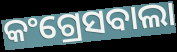
କଂଗ୍ରେସବାଲା